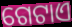
ଗେଟାଏ